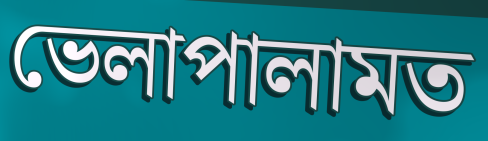
ভেলাপালামত